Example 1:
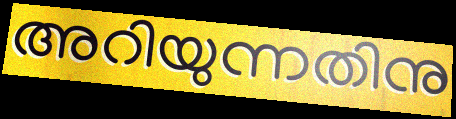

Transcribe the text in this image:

അറിയുന്നതിനു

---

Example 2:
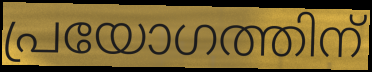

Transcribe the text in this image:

പ്രയോഗത്തിന്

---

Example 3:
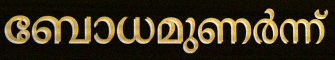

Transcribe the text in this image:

ബോധമുണർന്ന്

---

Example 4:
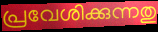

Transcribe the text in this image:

പ്രവേശിക്കുന്നതു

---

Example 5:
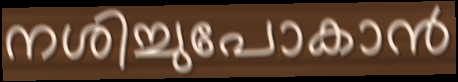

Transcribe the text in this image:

നശിച്ചുപോകാൻ